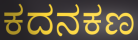
ಕದನಕಣ